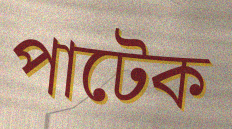
পাটেক